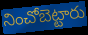
నించోబెట్టారు